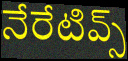
నేరేటివ్స్